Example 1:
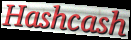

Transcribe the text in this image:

Hashcash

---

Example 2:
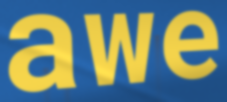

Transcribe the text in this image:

awe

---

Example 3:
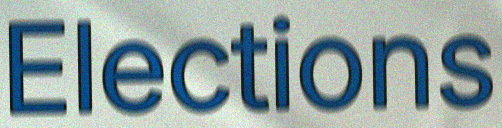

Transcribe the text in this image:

Elections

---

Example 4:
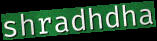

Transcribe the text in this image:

shradhdha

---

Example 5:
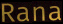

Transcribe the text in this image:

Rana